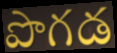
పొగడ